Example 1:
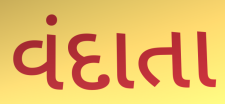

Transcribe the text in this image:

વંદાતા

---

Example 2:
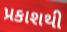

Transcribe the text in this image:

પ્રકાશથી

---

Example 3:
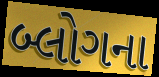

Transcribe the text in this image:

બ્લોગના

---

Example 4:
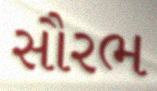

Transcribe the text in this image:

સૌરભ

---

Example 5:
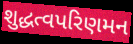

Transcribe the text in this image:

શુદ્ધત્વપરિણમન